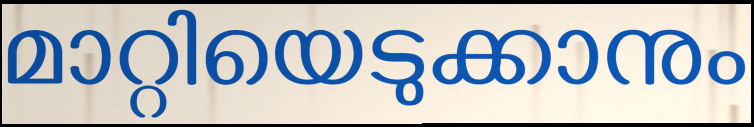
മാറ്റിയെടുക്കാനും